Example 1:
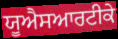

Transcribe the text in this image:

ਯੂਐਸਆਰਟੀਕੇ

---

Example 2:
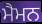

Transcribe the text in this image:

ਮੈਮਨ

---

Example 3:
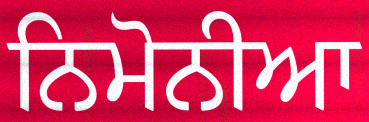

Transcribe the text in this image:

ਨਿਮੋਨੀਆ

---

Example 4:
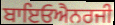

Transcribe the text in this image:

ਬਾਇਓਐਨਰਜੀ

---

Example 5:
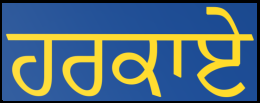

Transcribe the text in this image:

ਹਰਕਾਏ